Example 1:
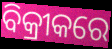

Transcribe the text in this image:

ବିକ୍ରୀକରେ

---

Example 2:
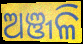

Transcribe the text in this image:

ଅଞ୍ଜଳି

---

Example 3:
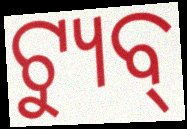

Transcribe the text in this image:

ଟ୍ୟୁବ୍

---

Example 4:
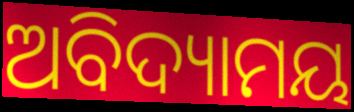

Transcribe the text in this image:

ଅବିଦ୍ୟାମୟ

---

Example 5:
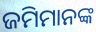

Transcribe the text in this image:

ଜମିମାନଙ୍କ